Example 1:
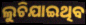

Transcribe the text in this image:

ଲୁଚିଯାଇଥିବ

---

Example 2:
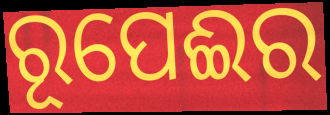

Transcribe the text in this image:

ରୂପେଈର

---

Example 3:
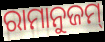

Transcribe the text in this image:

ରାମାନୁଜମ୍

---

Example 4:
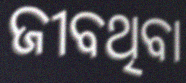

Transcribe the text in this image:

ଜୀବଥିବା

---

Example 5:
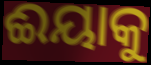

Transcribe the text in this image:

ଈୟାକୁ